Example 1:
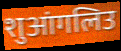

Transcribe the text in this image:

शुआंगलिउ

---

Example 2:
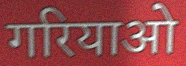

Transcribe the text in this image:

गरियाओ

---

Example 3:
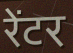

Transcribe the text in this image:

रेंटर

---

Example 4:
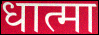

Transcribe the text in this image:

धात्मा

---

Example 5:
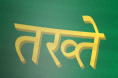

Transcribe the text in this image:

तख्ते